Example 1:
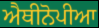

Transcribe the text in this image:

ਐਥੀਨੋਪੀਆ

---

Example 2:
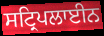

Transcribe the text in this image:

ਸਟ੍ਰਿਪਲਾਈਨ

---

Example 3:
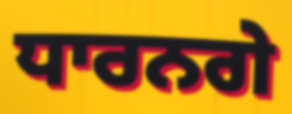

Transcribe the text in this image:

ਧਾਰਨਗੇ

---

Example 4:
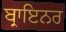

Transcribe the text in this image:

ਬ੍ਰਾਇਨਰ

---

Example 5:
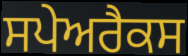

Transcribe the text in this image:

ਸਪੇਅਰੈਕਸ